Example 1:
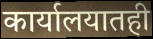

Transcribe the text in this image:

कार्यालयातही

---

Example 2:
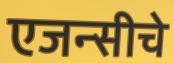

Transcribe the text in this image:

एजन्सीचे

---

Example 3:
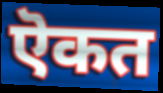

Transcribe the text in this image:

ऎकत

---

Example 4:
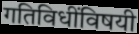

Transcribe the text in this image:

गतिविधींविषयी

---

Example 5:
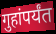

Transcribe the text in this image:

गुहांपर्यंत